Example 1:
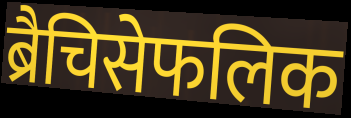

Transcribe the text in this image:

ब्रैचिसेफलिक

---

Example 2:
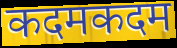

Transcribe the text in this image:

कदमकदम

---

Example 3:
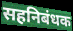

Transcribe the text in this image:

सहनिबंधक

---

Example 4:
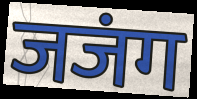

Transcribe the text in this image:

जजंग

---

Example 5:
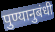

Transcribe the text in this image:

पुण्यानुबंधी